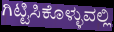
ಗಿಟ್ಟಿಸಿಕೊಳ್ಳುವಲ್ಲಿ